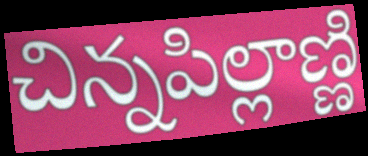
చిన్నపిల్లాణ్ణి